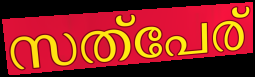
സത്പേര്